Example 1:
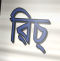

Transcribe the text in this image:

ৱিচ্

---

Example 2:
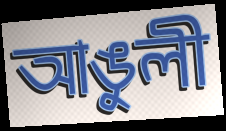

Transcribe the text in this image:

আঙুলী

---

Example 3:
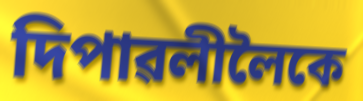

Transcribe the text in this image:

দিপাৱলীলৈকে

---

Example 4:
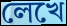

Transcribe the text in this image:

লেখে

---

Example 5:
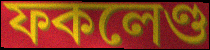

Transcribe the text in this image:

ফকলেণ্ড